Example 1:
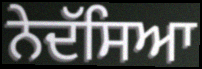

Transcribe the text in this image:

ਨੇਦੱਸਿਆ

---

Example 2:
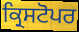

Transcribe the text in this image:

ਕ੍ਰਿਸਟੋਪਰ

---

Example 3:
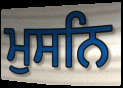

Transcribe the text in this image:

ਮੁਸਨਿ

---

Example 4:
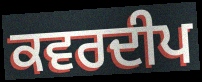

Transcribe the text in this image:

ਕਵਰਦੀਪ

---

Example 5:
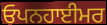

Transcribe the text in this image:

ਓਪਨਹਾਈਮਰ